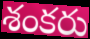
శంకరు